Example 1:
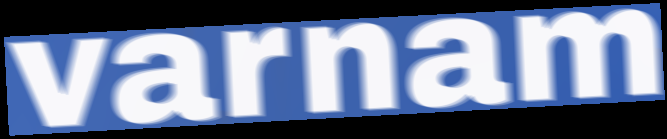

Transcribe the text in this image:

varnam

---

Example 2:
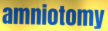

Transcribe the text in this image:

amniotomy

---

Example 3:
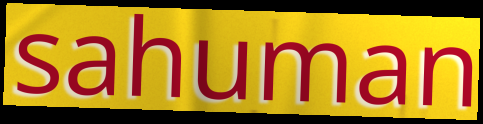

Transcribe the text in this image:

sahuman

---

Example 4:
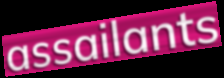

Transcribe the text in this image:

assailants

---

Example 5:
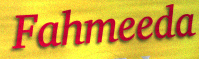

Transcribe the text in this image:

Fahmeeda